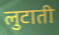
लुटाती